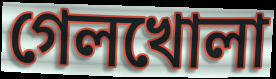
গেলখোলা